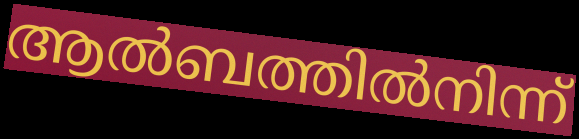
ആൽബത്തിൽനിന്ന്